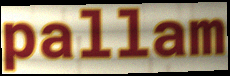
pallam